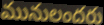
మునులందరు